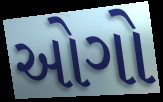
ઓગો